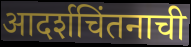
आदर्शचिंतनाची